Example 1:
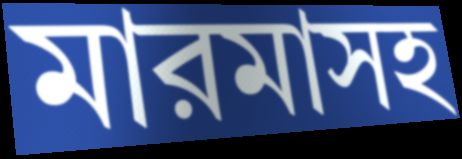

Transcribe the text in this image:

মারমাসহ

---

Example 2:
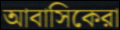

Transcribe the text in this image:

আবাসিকেরা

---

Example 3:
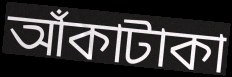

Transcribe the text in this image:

আঁকাটাকা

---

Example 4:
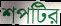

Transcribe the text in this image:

শপটির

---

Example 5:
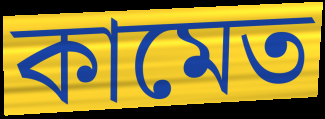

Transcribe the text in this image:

কামেত